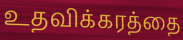
உதவிக்கரத்தை